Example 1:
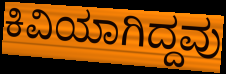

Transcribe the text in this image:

ಕಿವಿಯಾಗಿದ್ದವು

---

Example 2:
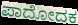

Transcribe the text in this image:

ಪಾದೋದಕ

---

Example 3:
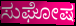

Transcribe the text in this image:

ಸುಘೋಷ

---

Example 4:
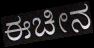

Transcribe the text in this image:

ಈಚೀನ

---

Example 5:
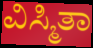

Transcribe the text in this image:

ವಿಸ್ಮಿತಾ